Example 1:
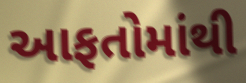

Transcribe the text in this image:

આફતોમાંથી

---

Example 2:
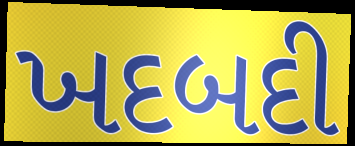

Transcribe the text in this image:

ખદબદી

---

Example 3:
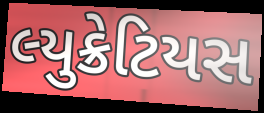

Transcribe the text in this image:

લ્યુક્રેટિયસ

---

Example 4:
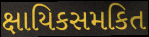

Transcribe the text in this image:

ક્ષાયિકસમકિત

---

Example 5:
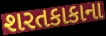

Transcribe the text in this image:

શરતકાકાના